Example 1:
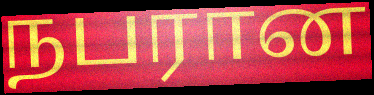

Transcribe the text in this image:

நபரான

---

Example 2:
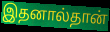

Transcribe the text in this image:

இதனால்தான்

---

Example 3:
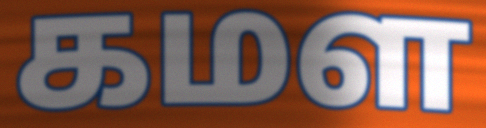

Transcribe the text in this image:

கமள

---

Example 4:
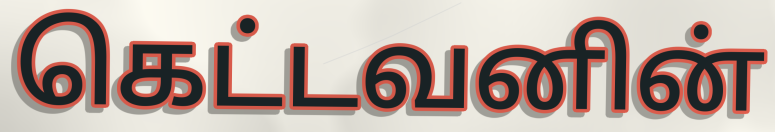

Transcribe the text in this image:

கெட்டவனின்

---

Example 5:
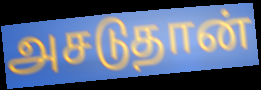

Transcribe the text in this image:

அசடுதான்